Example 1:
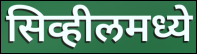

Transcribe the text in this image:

सिव्हीलमध्ये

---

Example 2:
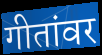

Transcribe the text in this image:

गीतांवर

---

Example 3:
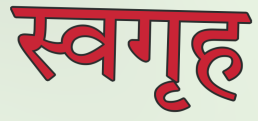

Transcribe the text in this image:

स्वगृह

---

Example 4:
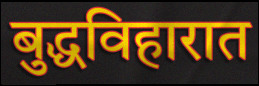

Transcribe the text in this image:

बुद्धविहारात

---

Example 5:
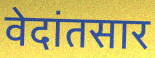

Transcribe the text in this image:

वेदांतसार